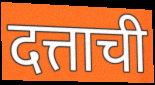
दत्ताची